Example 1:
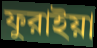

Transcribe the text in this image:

ফুরাইয়া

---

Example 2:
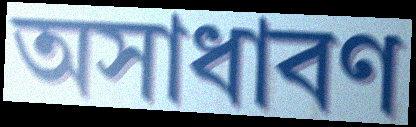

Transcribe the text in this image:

অসাধাবণ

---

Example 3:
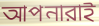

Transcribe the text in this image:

আপনারাই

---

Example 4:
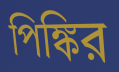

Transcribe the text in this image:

পিঙ্কির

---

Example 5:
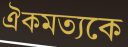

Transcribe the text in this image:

ঐকমত্যকে